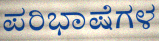
ಪರಿಭಾಷೆಗಳ